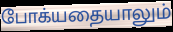
போக்யதையாலும்